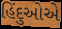
હિંદુઓએ